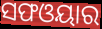
ସଫଓୟାର